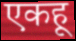
एकहू